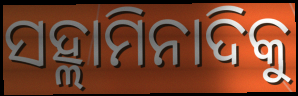
ସହ୍ଲାମିନାଦିକୁ